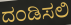
ದಂಡಿಸಲಿ